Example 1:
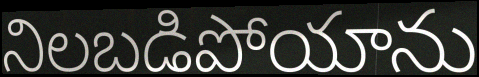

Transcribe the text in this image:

నిలబడిపోయాను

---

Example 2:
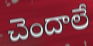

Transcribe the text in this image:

చెందాలే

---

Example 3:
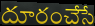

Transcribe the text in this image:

దూరంచేసే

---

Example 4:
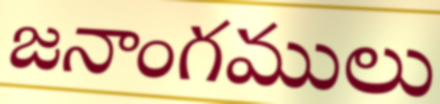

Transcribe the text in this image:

జనాంగములు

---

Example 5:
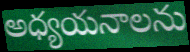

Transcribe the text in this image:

అధ్యయనాలను